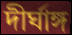
দীর্ঘাঙ্গ